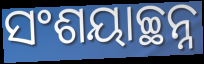
ସଂଶୟାଚ୍ଛନ୍ନ